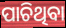
ପାଚିଥିବା